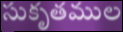
సుకృతముల